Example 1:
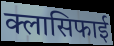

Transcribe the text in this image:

क्लासिफाई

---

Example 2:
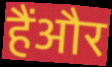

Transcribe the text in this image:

हैंऔर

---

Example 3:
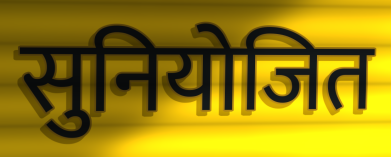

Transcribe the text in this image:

सुनियोजित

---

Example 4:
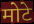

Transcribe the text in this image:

मोटे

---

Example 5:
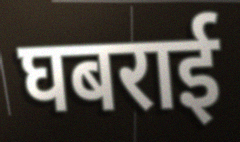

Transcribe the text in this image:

घबराई